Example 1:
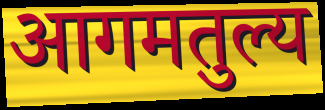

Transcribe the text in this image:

आगमतुल्य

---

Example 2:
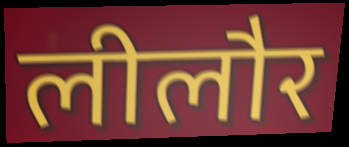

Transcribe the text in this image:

लीलौर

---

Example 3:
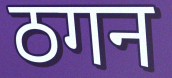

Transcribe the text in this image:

ठगन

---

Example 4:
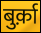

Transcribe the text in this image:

बुर्क़ा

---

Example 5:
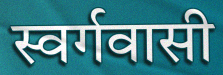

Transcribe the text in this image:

स्वर्गवासी